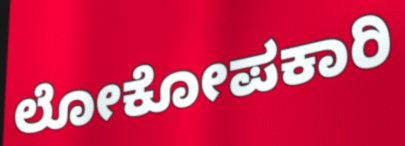
ಲೋಕೋಪಕಾರಿ